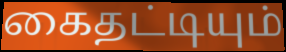
கைதட்டியும்